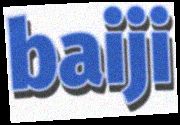
baiji